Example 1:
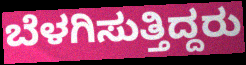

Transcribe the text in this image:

ಬೆಳಗಿಸುತ್ತಿದ್ದರು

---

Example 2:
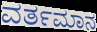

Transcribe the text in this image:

ವರ್ತಮಾನ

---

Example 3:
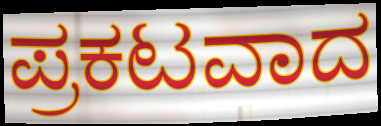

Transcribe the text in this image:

ಪ್ರಕಟವಾದ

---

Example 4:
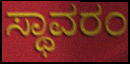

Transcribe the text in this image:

ಸ್ಥಾವರಂ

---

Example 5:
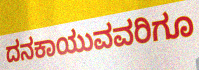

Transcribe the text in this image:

ದನಕಾಯುವವರಿಗೂ